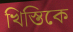
খিস্তিকে